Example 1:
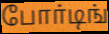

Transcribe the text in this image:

போர்டிங்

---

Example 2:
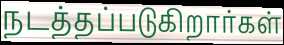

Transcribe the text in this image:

நடத்தப்படுகிறார்கள்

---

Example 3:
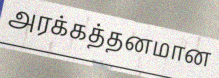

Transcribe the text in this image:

அரக்கத்தனமான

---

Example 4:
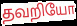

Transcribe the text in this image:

தவறியோ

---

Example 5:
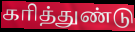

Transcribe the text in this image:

கரித்துண்டு